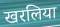
खरलिया